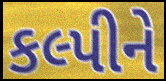
કલ્પીને